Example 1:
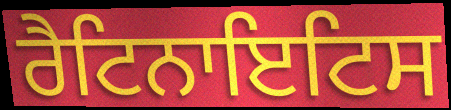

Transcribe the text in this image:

ਰੈਟਿਨਾਇਟਿਸ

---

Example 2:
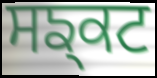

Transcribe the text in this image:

ਸਙ੍ਕਟ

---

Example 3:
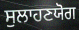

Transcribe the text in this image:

ਸੁਲਾਹਣਯੋਗ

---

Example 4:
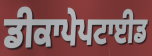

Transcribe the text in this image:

ਡੀਕਾਪੇਪਟਾਈਡ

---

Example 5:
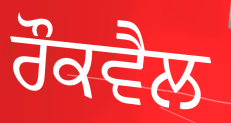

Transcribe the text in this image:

ਰੌਕਵੈਲ